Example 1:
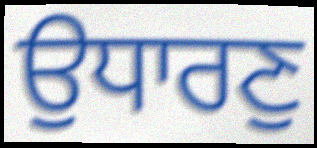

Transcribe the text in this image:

ਉਧਾਰਣੁ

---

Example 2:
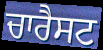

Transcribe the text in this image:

ਚਾਰੈਸਟ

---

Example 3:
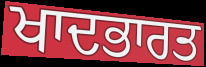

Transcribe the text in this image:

ਖਾਦਭਾਰਤ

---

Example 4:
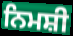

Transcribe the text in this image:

ਨਿਮਸ਼ੀ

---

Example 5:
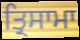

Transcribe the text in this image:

ਤ੍ਰਿਸਾਮਾ